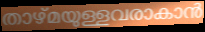
താഴ്മയുള്ളവരാകാൻ